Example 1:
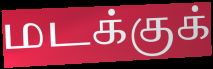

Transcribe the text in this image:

மடக்குக்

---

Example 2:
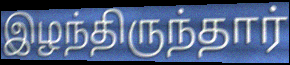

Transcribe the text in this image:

இழந்திருந்தார்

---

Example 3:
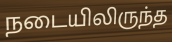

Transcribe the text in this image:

நடையிலிருந்த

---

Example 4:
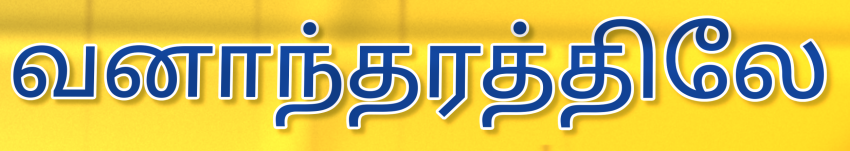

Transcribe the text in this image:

வனாந்தரத்திலே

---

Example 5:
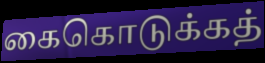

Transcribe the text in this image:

கைகொடுக்கத்